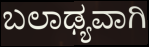
ಬಲಾಢ್ಯವಾಗಿ